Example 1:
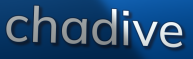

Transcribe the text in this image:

chadive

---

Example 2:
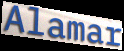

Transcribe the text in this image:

Alamar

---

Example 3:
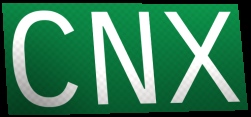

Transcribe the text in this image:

CNX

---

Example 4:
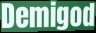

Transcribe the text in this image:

Demigod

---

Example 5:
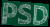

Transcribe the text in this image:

PSD